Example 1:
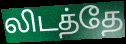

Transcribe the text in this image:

லிடத்தே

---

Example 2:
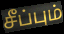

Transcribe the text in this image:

சீப்பும்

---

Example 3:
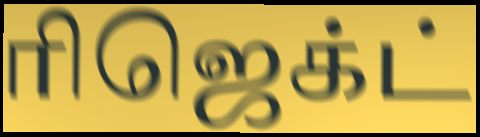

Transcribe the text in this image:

ரிஜெக்ட்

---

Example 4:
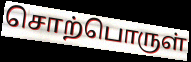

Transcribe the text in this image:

சொற்பொருள்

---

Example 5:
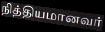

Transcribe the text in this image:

நித்தியமானவர்